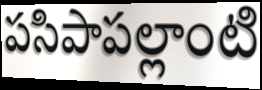
పసిపాపల్లాంటి